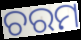
ଚରମ